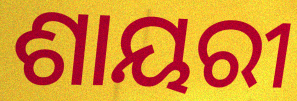
ଶାୟରୀ